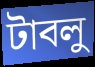
টাবলু